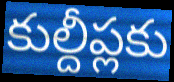
కుల్దీప్లకు